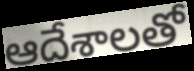
ఆదేశాలతో